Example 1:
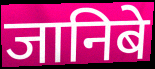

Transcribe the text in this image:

जानिबे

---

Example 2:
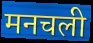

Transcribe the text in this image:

मनचली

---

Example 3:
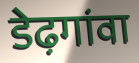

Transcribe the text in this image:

डेढ़गांवा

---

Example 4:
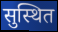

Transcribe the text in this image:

सुस्थित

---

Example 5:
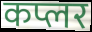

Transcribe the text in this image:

कप्लर